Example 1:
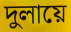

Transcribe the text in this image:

দুলায়ে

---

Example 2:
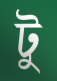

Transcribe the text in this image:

টু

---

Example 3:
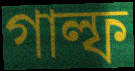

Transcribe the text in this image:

গাল্ফ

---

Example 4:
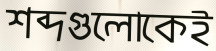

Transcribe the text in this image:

শব্দগুলোকেই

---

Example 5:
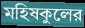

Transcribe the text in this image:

মহিষকুলের